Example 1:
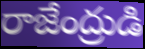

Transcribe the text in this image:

రాజేంద్రుడి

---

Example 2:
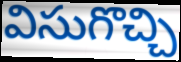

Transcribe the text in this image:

విసుగొచ్చి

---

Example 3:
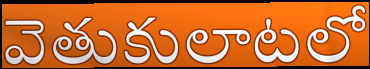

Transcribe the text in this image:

వెతుకులాటలో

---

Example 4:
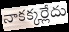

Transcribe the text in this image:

నాకక్కర్లేదు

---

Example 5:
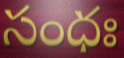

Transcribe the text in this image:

సంధః